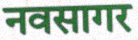
नवसागर